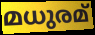
മധുരമ്